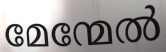
മേന്മേൽ